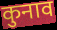
कुनाव